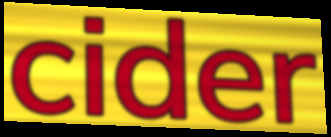
cider